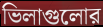
ভিলাগুলোর